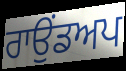
ਰਾਉਂਡਅਪ